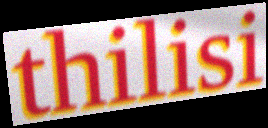
thilisi